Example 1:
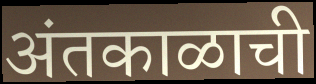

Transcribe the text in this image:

अंतकाळाची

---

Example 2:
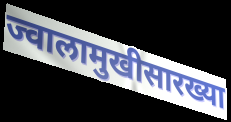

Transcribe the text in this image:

ज्वालामुखीसारख्या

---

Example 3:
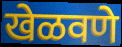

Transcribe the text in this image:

खेळवणे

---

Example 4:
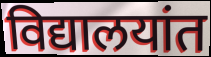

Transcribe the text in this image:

विद्यालयांत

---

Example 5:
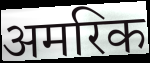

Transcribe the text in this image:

अमरिक